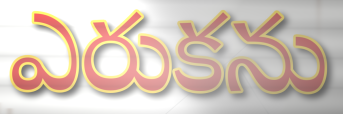
ఎరుకను